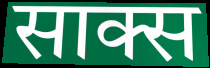
साक्स